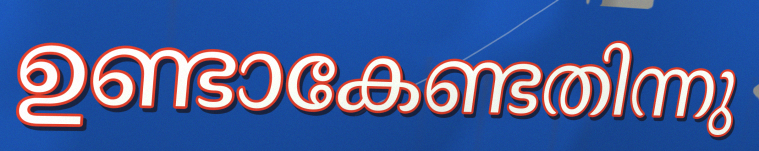
ഉണ്ടാകേണ്ടതിന്നു